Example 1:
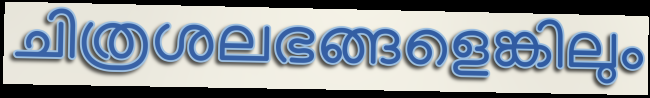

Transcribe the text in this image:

ചിത്രശലഭങ്ങളെങ്കിലും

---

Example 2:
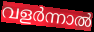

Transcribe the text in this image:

വളർന്നാൽ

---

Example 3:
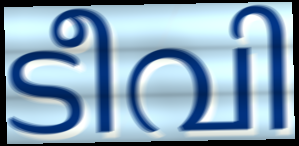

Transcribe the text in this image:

ടീവി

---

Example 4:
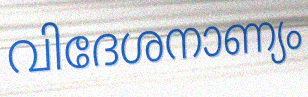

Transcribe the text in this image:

വിദേശനാണ്യം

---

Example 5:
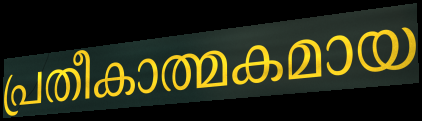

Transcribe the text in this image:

പ്രതീകാത്മകമായ